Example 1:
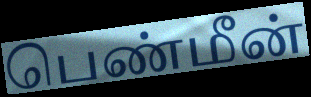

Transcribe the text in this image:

பெண்மீன்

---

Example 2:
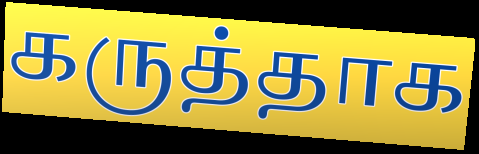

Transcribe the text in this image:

கருத்தாக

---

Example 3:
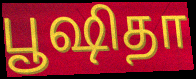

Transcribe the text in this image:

பூஷிதா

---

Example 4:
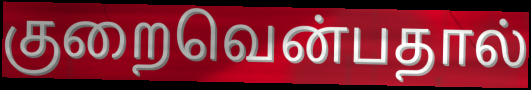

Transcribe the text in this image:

குறைவென்பதால்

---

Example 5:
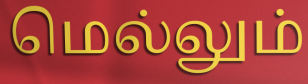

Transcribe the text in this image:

மெல்லும்